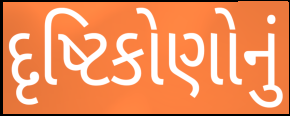
દૃષ્ટિકોણોનું